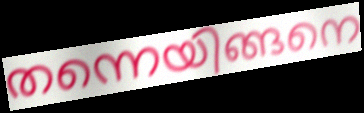
തന്നെയിങ്ങനെ